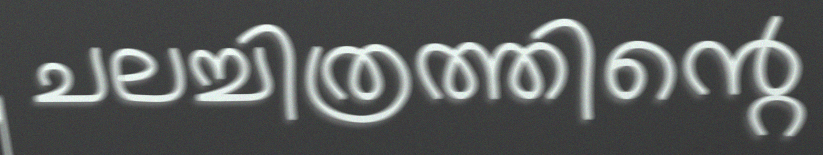
ചലച്ചിത്രത്തിന്റെ